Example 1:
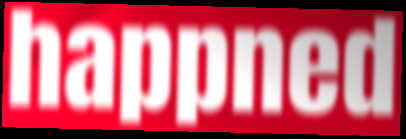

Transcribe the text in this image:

happned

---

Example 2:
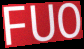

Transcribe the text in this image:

FUO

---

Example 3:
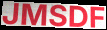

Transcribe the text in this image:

JMSDF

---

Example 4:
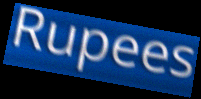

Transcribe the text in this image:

Rupees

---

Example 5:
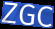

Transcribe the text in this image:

ZGC